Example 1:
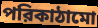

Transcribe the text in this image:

পরিকাঠামো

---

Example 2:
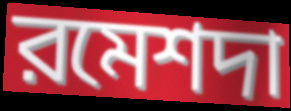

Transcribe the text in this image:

রমেশদা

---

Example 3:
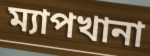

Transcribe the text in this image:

ম্যাপখানা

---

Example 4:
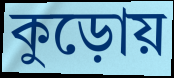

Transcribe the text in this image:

কুড়োয়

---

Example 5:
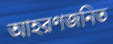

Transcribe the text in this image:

আহরণজনিত